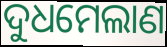
ଦୁଧମେଲାଣ